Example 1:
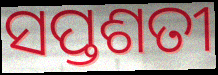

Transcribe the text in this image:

ସପ୍ତଶତୀ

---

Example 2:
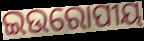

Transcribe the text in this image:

ଇଉରୋପୀୟ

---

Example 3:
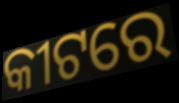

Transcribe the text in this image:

କୀଟରେ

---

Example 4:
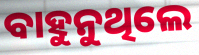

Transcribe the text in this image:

ବାହୁନୁଥିଲେ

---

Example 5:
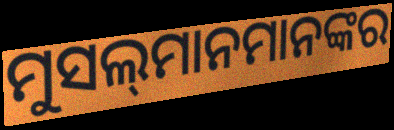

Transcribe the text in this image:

ମୁସଲ୍‌ମାନମାନଙ୍କର